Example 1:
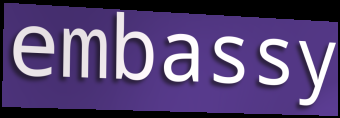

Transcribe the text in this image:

embassy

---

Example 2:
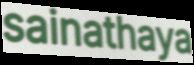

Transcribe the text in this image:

sainathaya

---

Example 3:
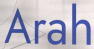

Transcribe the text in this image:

Arah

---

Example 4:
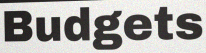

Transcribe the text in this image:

Budgets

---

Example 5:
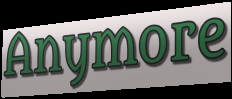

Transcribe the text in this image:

Anymore